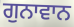
ਗੁਨਾਵਾਨ